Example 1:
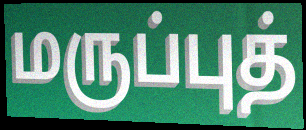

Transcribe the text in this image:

மருப்புத்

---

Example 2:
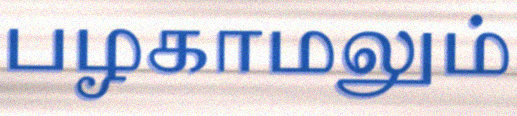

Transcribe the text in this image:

பழகாமலும்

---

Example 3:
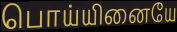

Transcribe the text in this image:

பொய்யினையே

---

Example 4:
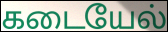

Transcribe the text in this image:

கடையேல்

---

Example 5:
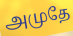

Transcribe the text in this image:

அமுதே